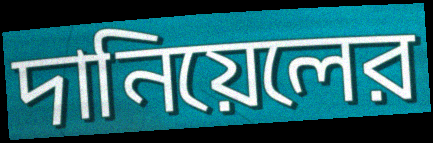
দানিয়েলের